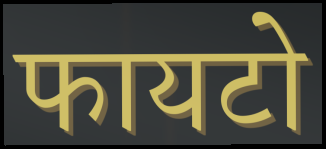
फायटो